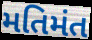
મતિમંત